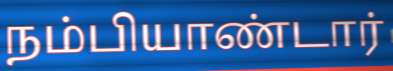
நம்பியாண்டார்